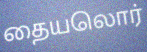
தையலொர்